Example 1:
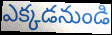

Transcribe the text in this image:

ఎక్కడనుండి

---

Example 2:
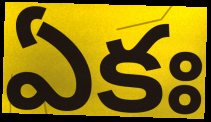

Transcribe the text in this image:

ఏకః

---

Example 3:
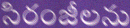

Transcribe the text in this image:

సిరంజీలను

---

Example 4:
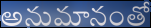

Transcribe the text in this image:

అనుమానంతో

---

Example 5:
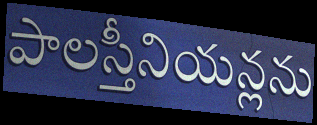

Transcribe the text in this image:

పాలస్తీనియన్లను